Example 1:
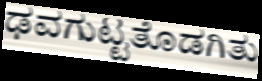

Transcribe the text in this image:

ಢವಗುಟ್ಟತೊಡಗಿತು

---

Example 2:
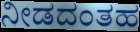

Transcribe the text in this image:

ನೀಡದಂತಹ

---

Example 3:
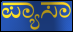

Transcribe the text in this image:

ಪ್ಯಾಸಾ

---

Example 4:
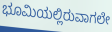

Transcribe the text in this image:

ಭೂಮಿಯಲ್ಲಿರುವಾಗಲೇ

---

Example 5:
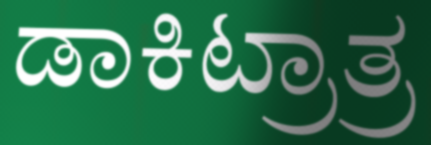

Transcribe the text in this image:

ಡಾಕಿಟ್ರಾತ್ರ